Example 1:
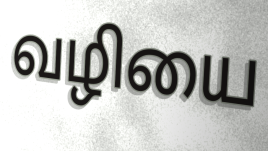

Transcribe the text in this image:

வழியை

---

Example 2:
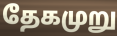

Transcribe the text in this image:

தேகமுறு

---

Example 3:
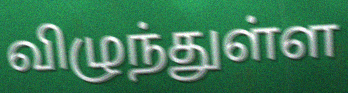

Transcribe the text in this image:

விழுந்துள்ள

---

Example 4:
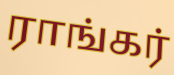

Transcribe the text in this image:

ராங்கர்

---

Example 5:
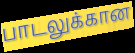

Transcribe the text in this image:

பாடலுக்கான